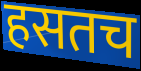
हसतच